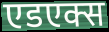
एडएक्स